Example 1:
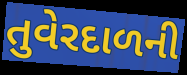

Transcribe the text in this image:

તુવેરદાળની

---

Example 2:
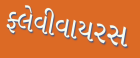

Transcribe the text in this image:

ફ્લેવીવાયરસ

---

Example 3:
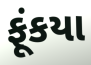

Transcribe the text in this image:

ફૂંકયા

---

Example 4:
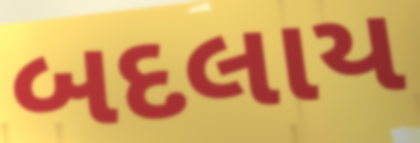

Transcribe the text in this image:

બદલાય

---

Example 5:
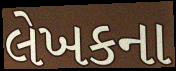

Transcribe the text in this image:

લેખકના